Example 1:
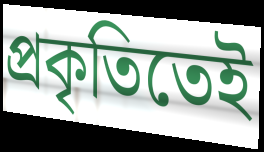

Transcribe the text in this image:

প্রকৃতিতেই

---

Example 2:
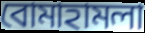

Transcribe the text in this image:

বোমাহামলা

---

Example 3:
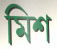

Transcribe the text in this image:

মিশ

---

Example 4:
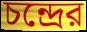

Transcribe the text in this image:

চন্দ্রের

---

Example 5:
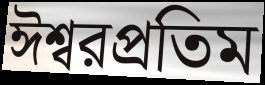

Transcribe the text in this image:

ঈশ্বরপ্রতিম